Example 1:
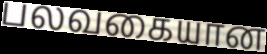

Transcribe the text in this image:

பலவகையான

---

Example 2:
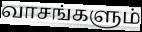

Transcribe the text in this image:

வாசங்களும்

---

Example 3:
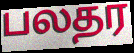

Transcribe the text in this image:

பலதர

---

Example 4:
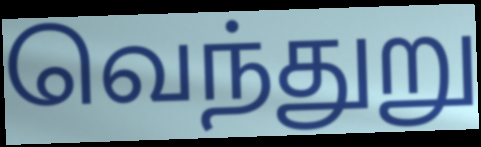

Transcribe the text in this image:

வெந்துறு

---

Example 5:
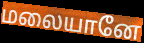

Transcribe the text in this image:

மலையானே